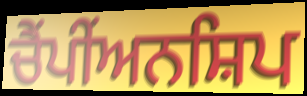
ਚੈਂਪੀਂਅਨਸ਼ਿਪ